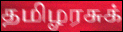
தமிழரசுக்